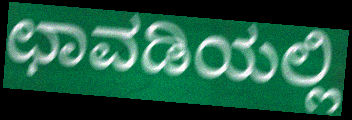
ಛಾವಡಿಯಲ್ಲಿ